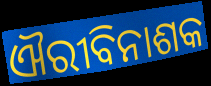
ଐରୀବିନାଶକ